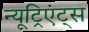
न्यूट्रिएंट्स